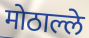
मोठाल्ले